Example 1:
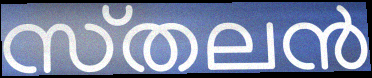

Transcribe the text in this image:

സ്‌തലൻ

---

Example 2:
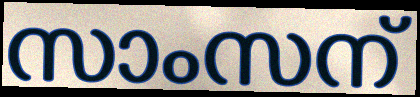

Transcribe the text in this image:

സാംസന്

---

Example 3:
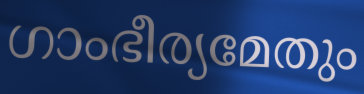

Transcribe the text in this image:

ഗാംഭീര്യമേതും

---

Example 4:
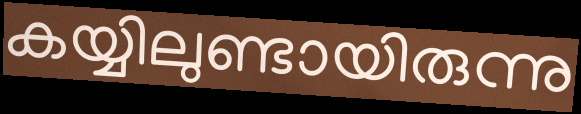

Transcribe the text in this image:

കയ്യിലുണ്ടായിരുന്നു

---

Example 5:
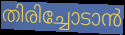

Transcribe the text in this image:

തിരിച്ചോടാൻ